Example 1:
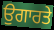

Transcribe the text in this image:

ਉਗਾਰਤੇ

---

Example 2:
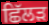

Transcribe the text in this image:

ਛਿੱਲੜ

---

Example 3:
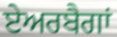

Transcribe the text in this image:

ਏਅਰਬੈਗਾਂ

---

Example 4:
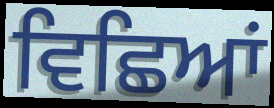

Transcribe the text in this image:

ਵਿਛਿਆਂ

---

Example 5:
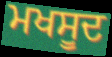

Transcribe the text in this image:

ਮਖਸੂਦ